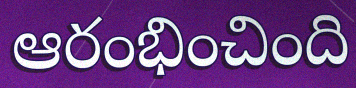
ఆరంభించింది